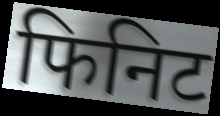
फिनिट